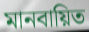
মানবায়িত